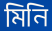
মিনি